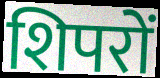
शिपरों